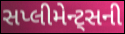
સપ્લીમેન્ટ્સની